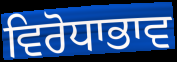
ਵਿਰੋਧਾਭਾਵ